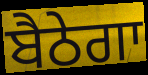
ਬੈਠੇਗਾ